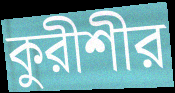
কুরীশীর